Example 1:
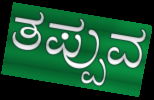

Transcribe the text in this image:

ತಪ್ಪುವ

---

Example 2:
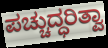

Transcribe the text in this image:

ಪಚ್ಚುದ್ಧರಿತ್ವಾ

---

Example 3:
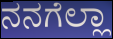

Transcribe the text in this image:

ನನಗೆಲ್ಲಾ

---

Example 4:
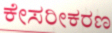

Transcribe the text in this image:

ಕೇಸರೀಕರಣ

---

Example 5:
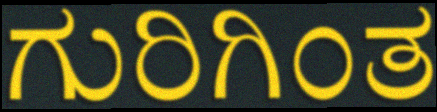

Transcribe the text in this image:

ಗುರಿಗಿಂತ